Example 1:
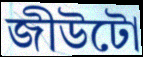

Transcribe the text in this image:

জীউটো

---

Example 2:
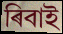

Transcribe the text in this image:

ৰিবাই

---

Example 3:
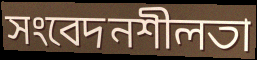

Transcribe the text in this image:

সংবেদনশীলতা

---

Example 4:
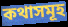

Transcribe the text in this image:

কথাসমূহ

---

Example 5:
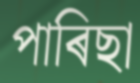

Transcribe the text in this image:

পাৰিছা